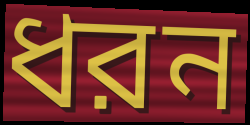
ধরন